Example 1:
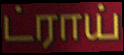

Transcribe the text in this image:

ட்ராய்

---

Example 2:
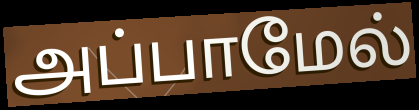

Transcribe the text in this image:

அப்பாமேல்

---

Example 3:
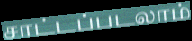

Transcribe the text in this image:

சாட்டப்படலாம்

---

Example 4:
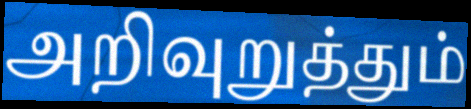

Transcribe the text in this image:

அறிவுறுத்தும்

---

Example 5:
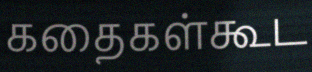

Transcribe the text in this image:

கதைகள்கூட